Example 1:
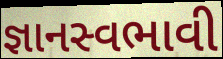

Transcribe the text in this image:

જ્ઞાનસ્વભાવી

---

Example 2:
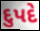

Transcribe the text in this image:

દુપદે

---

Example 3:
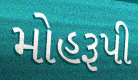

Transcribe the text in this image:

મોહરૂપી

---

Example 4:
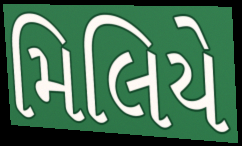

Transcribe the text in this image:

મિલિયે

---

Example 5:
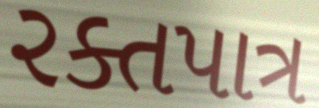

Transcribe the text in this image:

રક્તપાત્ર